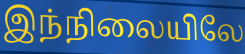
இந்நிலையிலே